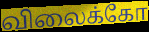
விலைக்கோ